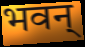
भवन्